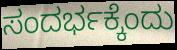
ಸಂದರ್ಭಕ್ಕೆಂದು